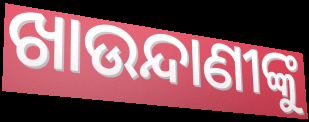
ଖାଉନ୍ଦାଣୀଙ୍କୁ